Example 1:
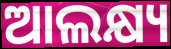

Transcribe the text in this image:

ଆଲକ୍ଷ୍ୟ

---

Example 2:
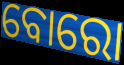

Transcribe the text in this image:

ବୋରୋ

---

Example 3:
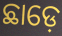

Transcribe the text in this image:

ଛାଡ଼େ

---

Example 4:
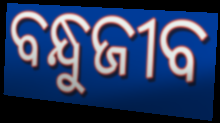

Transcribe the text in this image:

ବନ୍ଧୁଜୀବ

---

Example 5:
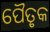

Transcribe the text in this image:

ପୈତୃକ